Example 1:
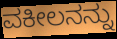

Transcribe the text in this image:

ವಕೀಲನನ್ನು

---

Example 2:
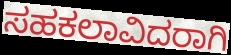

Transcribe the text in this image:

ಸಹಕಲಾವಿದರಾಗಿ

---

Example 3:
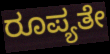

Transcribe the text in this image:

ರೂಪ್ಯತೇ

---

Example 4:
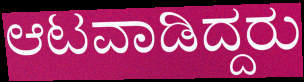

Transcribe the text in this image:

ಆಟವಾಡಿದ್ದರು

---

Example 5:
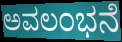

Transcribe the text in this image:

ಅವಲಂಭನೆ